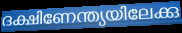
ദക്ഷിണേന്ത്യയിലേക്കു